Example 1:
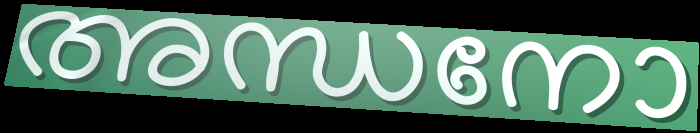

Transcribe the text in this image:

അന്ധനോ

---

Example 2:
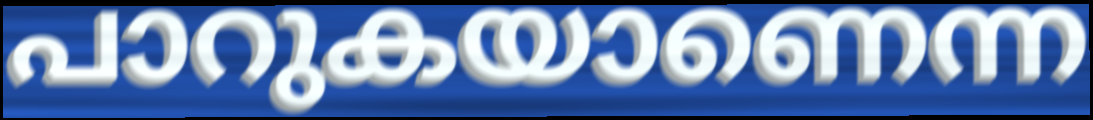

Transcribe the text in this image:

പാറുകയാണെന്ന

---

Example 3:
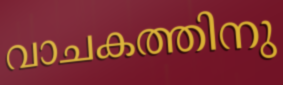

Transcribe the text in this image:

വാചകത്തിനു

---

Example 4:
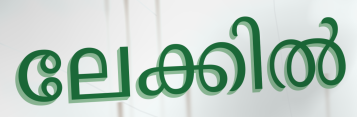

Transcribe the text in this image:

ലേക്കിൽ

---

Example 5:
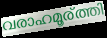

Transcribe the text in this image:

വരാഹമൂര്ത്തി